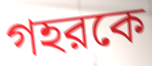
গহরকে